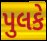
પુલકે